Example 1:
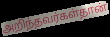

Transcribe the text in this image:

அறிந்தவர்கள்தான்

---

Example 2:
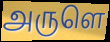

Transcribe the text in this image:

அருளெ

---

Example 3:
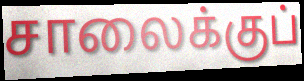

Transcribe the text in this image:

சாலைக்குப்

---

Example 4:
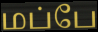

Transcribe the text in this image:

மப்பே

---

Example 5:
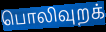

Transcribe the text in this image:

பொலிவுறக்